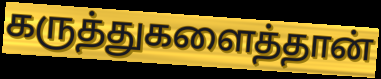
கருத்துகளைத்தான்